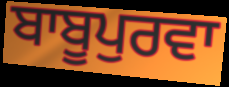
ਬਾਬੂਪੁਰਵਾ